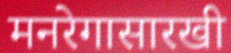
मनरेगासारखी